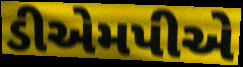
ડીએમપીએ